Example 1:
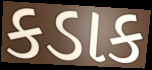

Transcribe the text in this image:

કડાક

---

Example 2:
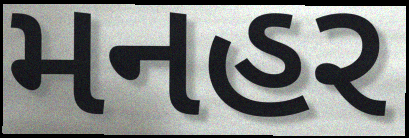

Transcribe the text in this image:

મનહર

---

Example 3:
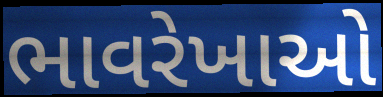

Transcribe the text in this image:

ભાવરેખાઓ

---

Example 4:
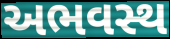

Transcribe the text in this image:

અભવસ્થ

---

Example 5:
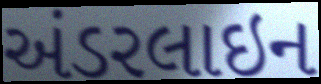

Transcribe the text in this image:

અંડરલાઇન